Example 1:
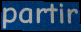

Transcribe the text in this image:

partir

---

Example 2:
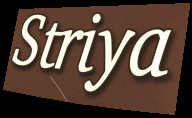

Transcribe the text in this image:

Striya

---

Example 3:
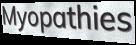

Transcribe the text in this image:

Myopathies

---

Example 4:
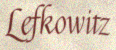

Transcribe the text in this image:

Lefkowitz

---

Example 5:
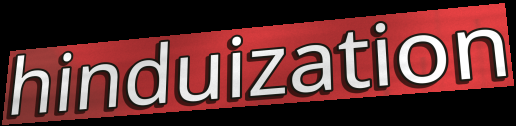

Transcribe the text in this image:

hinduization